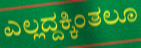
ಎಲ್ಲದ್ದಕ್ಕಿಂತಲೂ